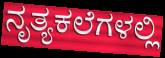
ನೃತ್ಯಕಲೆಗಳಲ್ಲಿ